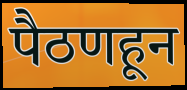
पैठणहून